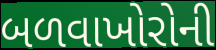
બળવાખોરોની